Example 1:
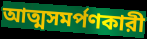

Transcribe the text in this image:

আত্মসমর্পণকারী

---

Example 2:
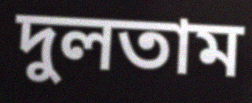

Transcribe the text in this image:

দুলতাম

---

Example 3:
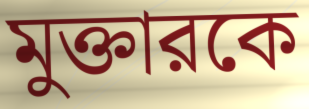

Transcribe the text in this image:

মুক্তারকে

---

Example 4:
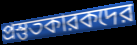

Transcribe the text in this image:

প্রস্তুতকারকদের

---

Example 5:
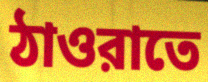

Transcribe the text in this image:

ঠাওরাতে